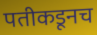
पतीकडूनच